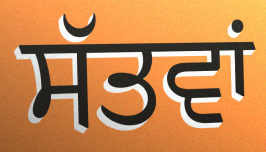
ਸੱਤਵਾਂ